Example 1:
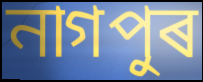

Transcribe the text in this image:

নাগপুৰ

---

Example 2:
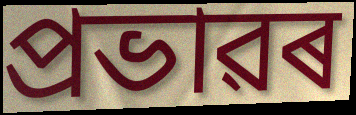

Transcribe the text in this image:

প্ৰভাৱৰ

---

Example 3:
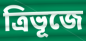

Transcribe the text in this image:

ত্ৰিভূজে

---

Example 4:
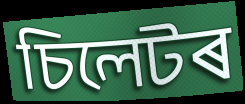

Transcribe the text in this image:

চিলেটৰ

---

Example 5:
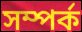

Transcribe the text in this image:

সম্পৰ্ক